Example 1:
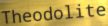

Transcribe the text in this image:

Theodolite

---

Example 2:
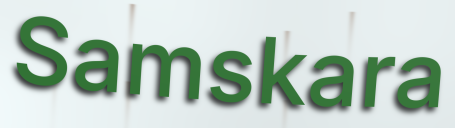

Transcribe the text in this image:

Samskara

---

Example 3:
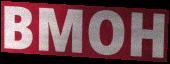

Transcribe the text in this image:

BMOH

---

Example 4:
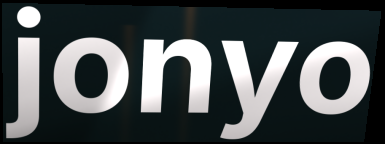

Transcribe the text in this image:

jonyo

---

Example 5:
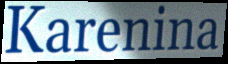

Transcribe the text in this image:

Karenina